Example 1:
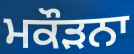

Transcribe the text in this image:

ਮਕੌੜਨਾ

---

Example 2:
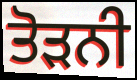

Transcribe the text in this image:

ਤੋੜਨੀ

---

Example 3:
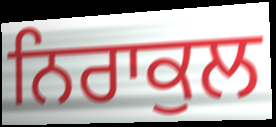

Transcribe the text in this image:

ਨਿਰਾਕੁਲ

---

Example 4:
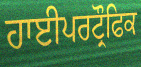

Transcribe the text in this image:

ਹਾਈਪਰਟ੍ਰੌਫਿਕ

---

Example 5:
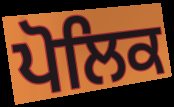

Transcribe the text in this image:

ਪੋਲਿਕ